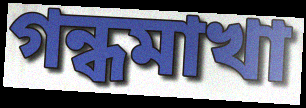
গন্ধমাখা